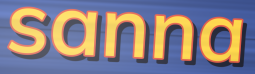
sanna